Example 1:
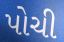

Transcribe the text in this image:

પોચી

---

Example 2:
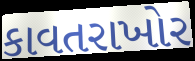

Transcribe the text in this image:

કાવતરાખોર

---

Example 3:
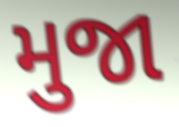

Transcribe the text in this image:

મુજા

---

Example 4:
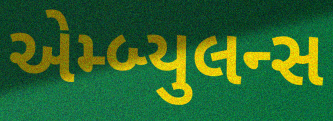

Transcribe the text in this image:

એમ્બ્યુલન્સ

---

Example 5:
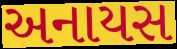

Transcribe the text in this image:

અનાયસ